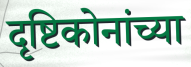
दृष्टिकोनांच्या